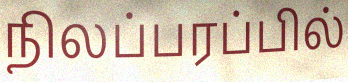
நிலப்பரப்பில்